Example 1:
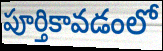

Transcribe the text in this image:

పూర్తికావడంలో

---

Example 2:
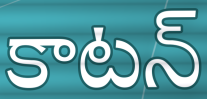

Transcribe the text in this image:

కాటన్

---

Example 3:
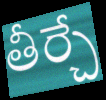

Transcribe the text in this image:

తీర్చే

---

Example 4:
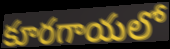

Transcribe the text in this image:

కూరగాయలో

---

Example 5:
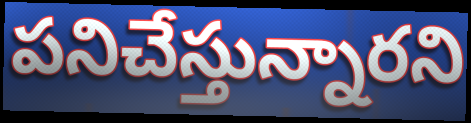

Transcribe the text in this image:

పనిచేస్తున్నారని